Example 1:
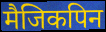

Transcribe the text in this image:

मैजिकपिन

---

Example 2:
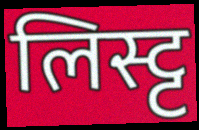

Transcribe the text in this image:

लिस्ट्ट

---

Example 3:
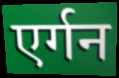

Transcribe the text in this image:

एर्गन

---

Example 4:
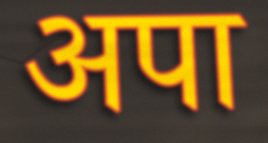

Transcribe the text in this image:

अपा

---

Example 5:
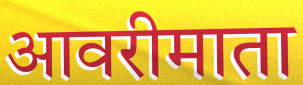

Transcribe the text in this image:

आवरीमाता